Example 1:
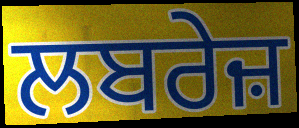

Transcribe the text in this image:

ਲਬਰੇਜ਼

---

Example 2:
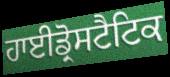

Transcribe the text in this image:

ਹਾਈਡ੍ਰੋਸਟੈਟਿਕ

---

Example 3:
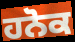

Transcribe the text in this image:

ਹਨੋਕ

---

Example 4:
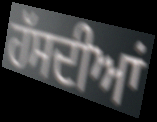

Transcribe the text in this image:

ਹੱਸਦੀਆਂ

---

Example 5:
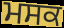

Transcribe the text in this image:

ਮਸਕ